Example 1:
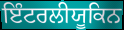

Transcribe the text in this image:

ਇੰਟਰਲੀਯੂਕਿਨ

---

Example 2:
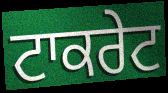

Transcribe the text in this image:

ਟਾਕਰੇਟ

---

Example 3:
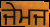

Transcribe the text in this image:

ਜੇਮਜ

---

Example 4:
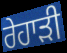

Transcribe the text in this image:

ਰੇਹਾੜੀ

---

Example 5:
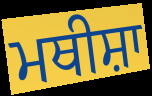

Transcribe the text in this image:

ਮਥੀਸ਼ਾ